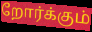
றோர்க்கும்